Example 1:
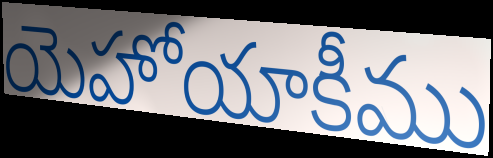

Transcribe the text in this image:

యెహోయాకీము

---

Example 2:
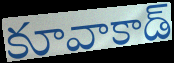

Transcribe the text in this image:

కూవాకాడ్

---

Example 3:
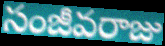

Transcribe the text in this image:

సంజీవరాజు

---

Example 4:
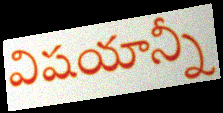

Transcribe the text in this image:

విషయాన్నీ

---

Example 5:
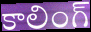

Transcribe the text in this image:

కాలింగ్